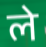
ले